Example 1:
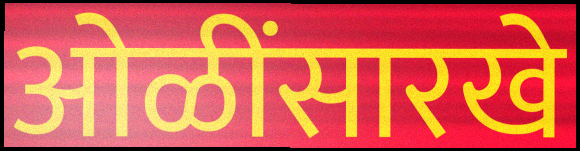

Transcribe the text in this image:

ओळींसारखे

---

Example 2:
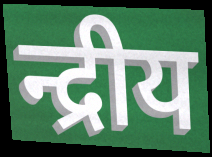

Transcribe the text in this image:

न्द्रीय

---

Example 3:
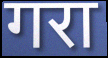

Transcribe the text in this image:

गरा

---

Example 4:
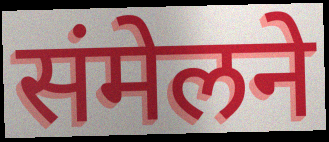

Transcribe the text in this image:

संमेलने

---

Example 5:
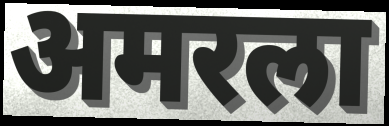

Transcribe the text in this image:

अमरला